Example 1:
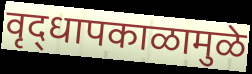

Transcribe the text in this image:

वृद्धापकाळामुळे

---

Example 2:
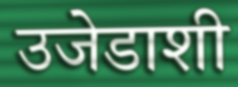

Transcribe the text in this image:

उजेडाशी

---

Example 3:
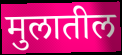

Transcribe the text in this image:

मुलातील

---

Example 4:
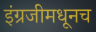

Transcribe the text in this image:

इंग्रजीमधूनच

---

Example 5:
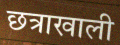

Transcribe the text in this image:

छत्राखाली